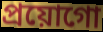
প্ৰয়োগো